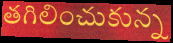
తగిలించుకున్న